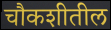
चौकशीतील